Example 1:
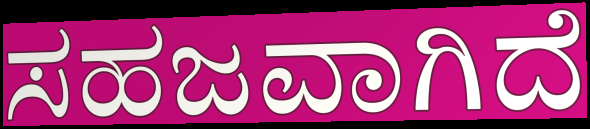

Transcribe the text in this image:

ಸಹಜವಾಗಿದೆ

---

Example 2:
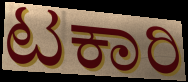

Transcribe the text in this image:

ಟಕಾರಿ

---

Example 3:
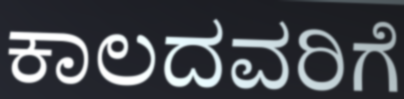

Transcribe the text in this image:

ಕಾಲದವರಿಗೆ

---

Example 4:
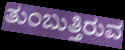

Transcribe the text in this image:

ತುಂಬುತ್ತಿರುವ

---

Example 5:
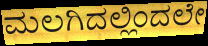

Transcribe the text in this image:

ಮಲಗಿದಲ್ಲಿಂದಲೇ